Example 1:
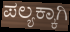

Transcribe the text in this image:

ಪಲ್ಯಕ್ಕಾಗಿ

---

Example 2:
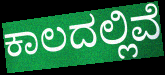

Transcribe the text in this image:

ಕಾಲದಲ್ಲಿವೆ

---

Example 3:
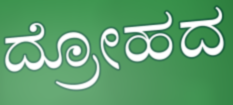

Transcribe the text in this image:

ದ್ರೋಹದ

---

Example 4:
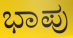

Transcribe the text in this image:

ಭಾಪು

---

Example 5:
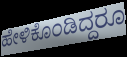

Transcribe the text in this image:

ಹೇಳಿಕೊಂಡಿದ್ದರೂ